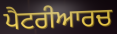
ਪੈਟਰੀਆਰਚ